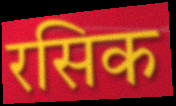
रसिक